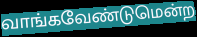
வாங்கவேண்டுமென்ற